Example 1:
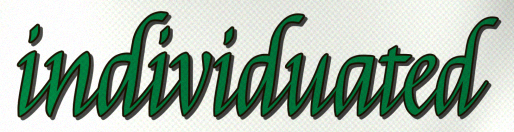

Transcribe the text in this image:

individuated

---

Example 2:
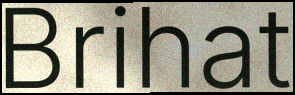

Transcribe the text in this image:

Brihat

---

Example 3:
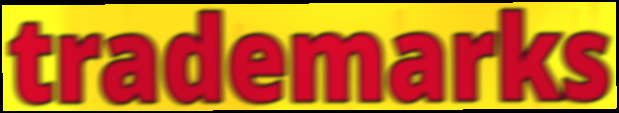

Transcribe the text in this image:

trademarks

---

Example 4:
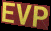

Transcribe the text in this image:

EVP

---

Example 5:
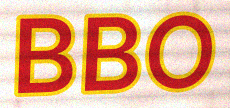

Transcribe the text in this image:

BBO